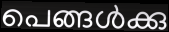
പെങ്ങൾക്കു